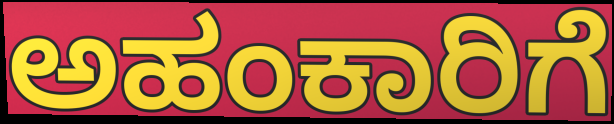
ಅಹಂಕಾರಿಗೆ